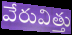
వేరువిత్తు